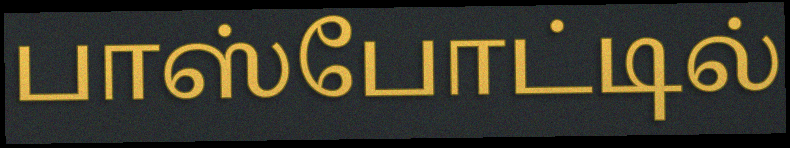
பாஸ்போட்டில்